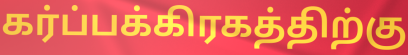
கர்ப்பக்கிரகத்திற்கு